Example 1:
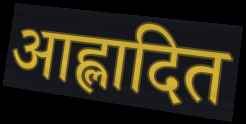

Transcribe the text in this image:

आह्लादित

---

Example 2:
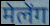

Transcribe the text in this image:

मेलेंग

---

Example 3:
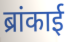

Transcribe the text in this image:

ब्रांकाई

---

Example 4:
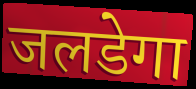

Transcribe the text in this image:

जलडेगा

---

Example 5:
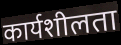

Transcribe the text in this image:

कार्यशीलता